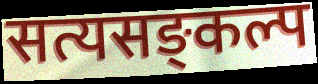
सत्यसङ्कल्प